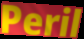
Peril